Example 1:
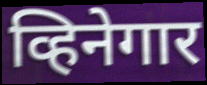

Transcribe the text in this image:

व्हिनेगार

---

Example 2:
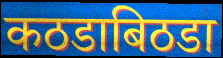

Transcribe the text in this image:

कठडाबिठडा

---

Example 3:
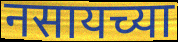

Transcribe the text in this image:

नसायच्या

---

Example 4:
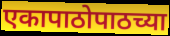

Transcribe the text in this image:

एकापाठोपाठच्या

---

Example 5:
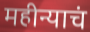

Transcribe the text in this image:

महीन्याचं